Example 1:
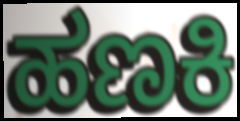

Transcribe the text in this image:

ಹಣಕಿ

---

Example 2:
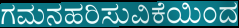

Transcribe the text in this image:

ಗಮನಹರಿಸುವಿಕೆಯಿಂದ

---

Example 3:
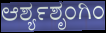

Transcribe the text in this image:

ಆರ್ಶ್ಯಶೃಂಗಿಂ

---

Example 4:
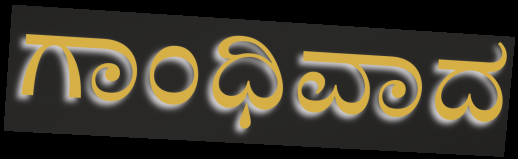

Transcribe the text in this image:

ಗಾಂಧಿವಾದ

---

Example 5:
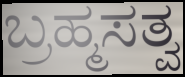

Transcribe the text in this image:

ಬ್ರಹ್ಮಸತ್ವ